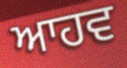
ਆਹਵ